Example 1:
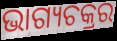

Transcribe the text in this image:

ଭାଗ୍ୟଚକ୍ରର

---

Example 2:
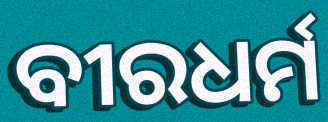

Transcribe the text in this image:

ବୀରଧର୍ମ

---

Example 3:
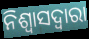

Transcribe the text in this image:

ନିଶ୍ୱାସଦ୍ୱାରା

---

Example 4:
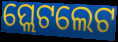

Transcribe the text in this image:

ପ୍ଲେଟଲେଟ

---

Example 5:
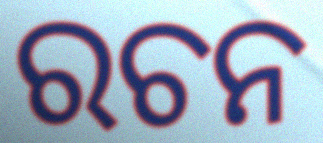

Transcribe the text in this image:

ରଚନ